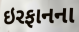
ઇરફાનના